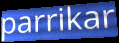
parrikar